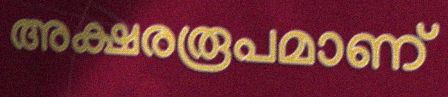
അക്ഷരരൂപമാണ്